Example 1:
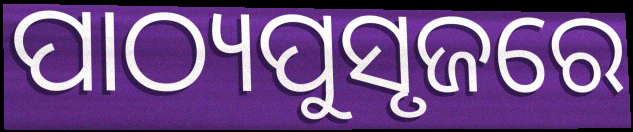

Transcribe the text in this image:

ପାଠ୍ୟପୁସୃଜରେ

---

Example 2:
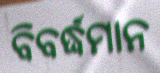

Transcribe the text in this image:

ବିବର୍ଦ୍ଧମାନ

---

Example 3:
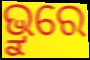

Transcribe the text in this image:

ଭ୍ରୁରେ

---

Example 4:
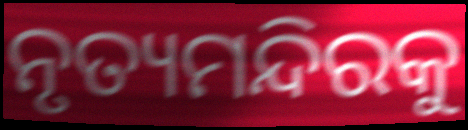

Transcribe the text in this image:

ନୃତ୍ୟମନ୍ଦିରକୁ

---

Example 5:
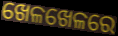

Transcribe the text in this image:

ଖେଳଖେଳରେ